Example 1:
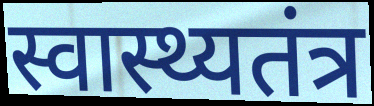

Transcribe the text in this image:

स्वास्थ्यतंत्र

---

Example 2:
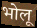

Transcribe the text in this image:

भोलू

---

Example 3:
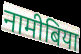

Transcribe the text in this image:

नामीबिया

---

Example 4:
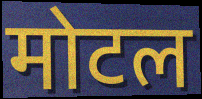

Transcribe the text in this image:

मोटल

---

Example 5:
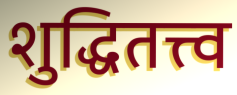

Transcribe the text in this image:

शुद्धितत्त्व